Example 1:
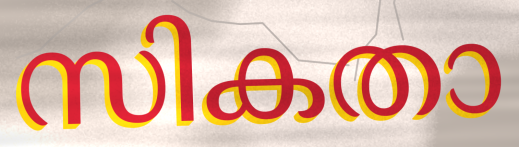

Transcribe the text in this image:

സികതാ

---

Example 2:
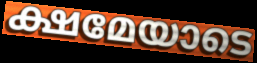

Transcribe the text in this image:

ക്ഷമേയാടെ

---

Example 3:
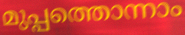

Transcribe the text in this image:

മുപ്പത്തൊന്നാം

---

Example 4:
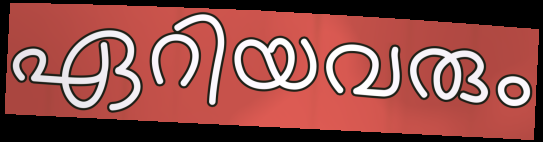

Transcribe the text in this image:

ഏറിയവരും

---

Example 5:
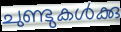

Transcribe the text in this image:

ചുണ്ടുകൾക്കു